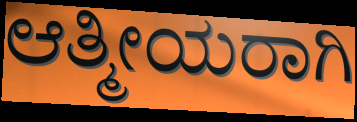
ಆತ್ಮೀಯರಾಗಿ